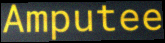
Amputee